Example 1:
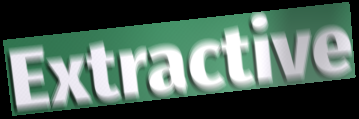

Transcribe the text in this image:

Extractive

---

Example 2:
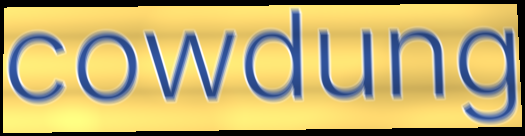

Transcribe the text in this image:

cowdung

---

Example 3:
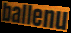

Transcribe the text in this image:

ballenu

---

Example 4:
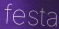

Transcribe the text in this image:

festa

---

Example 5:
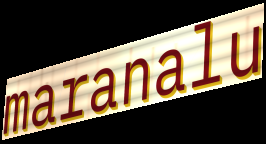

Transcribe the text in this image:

maranalu